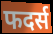
फदर्स